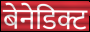
बेनेडिक्ट